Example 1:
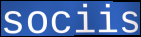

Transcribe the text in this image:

sociis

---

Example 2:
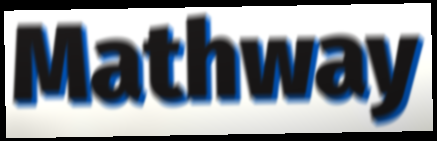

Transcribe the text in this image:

Mathway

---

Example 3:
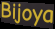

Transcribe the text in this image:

Bijoya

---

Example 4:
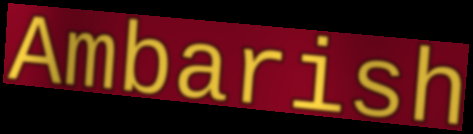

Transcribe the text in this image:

Ambarish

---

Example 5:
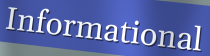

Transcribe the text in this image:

Informational